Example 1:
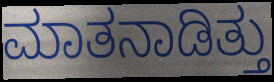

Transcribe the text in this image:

ಮಾತನಾಡಿತ್ತು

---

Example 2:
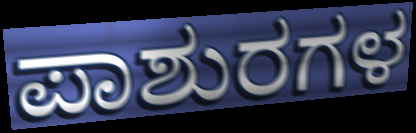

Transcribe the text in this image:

ಪಾಶುರಗಳ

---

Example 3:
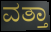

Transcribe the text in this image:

ವತ್ತಾ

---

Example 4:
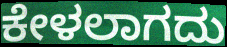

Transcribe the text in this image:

ಕೇಳಲಾಗದು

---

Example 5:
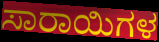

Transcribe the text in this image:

ಸಾರಾಯಿಗಳ